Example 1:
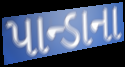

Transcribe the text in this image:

પાન્ડાના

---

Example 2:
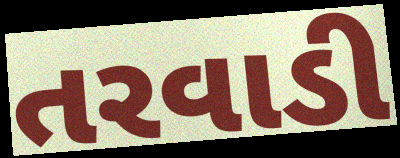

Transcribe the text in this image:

તરવાડી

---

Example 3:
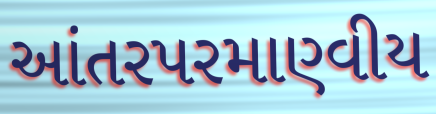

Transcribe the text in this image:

આંતરપરમાણ્વીય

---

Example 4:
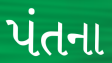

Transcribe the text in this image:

પંતના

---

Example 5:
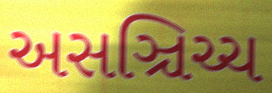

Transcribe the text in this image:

અસઞ્ચિચ્ચ